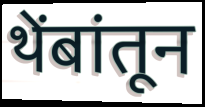
थेंबांतून